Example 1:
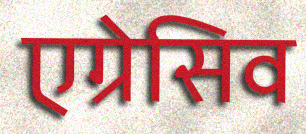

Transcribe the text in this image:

एग्रेसिव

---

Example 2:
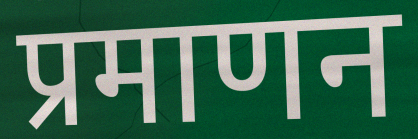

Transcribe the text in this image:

प्रमाणन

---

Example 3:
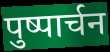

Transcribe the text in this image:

पुष्पार्चन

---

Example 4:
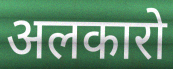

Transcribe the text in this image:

अलकारो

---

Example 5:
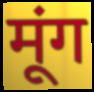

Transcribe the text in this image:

मूंग